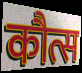
कौत्स